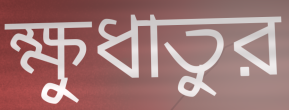
ক্ষুধাতুর